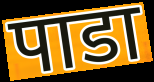
पाडा